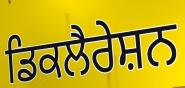
ਡਿਕਲੈਰੇਸ਼ਨ